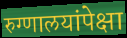
रुग्णालयांपेक्षा